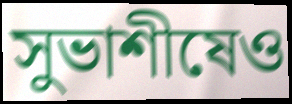
সুভাশীষেও